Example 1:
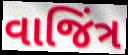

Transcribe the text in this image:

વાજિંત્ર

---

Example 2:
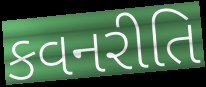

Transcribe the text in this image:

કવનરીતિ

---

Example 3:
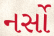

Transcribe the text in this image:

નર્સો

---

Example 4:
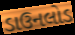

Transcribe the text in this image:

ડાઉનલોડ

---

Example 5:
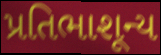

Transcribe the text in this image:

પ્રતિભાશૂન્ય